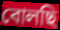
বোলছি